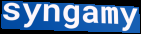
syngamy